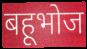
बहूभोज